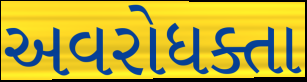
અવરોધક્તા